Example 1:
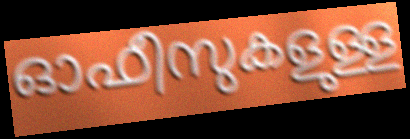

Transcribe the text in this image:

ഓഫീസുകളുള്ള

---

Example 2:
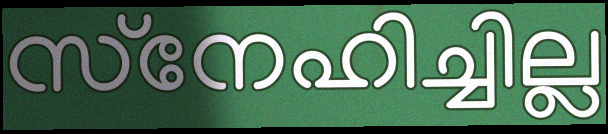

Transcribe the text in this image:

സ്‌നേഹിച്ചില്ല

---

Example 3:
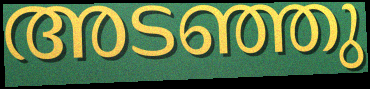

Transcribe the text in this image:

അടഞ്ഞു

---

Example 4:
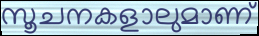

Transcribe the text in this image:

സൂചനകളാലുമാണ്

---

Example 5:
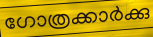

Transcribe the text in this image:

ഗോത്രക്കാർക്കു